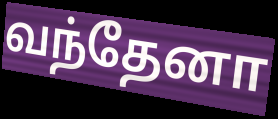
வந்தேனா